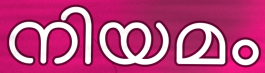
നിയമം